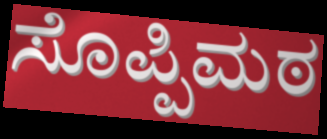
ಸೊಪ್ಪಿಮಠ